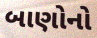
બાણોનો